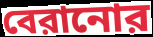
বেরানোর